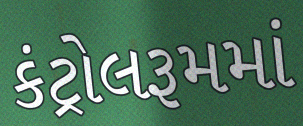
કંટ્રોલરૂમમાં